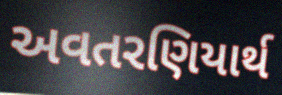
અવતરણિયાર્થ